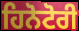
ਹਿਨੋਟੋਰੀ